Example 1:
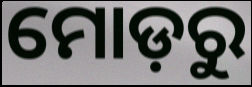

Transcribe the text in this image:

ମୋଡ଼ରୁ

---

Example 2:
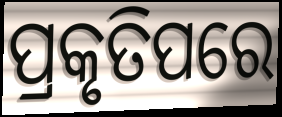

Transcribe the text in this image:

ପ୍ରକୃତିପରେ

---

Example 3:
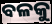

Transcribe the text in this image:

ବଳକୁ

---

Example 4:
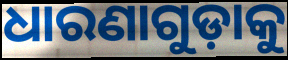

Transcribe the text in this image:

ଧାରଣାଗୁଡ଼ାକୁ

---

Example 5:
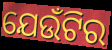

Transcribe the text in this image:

ଯେଉଁଟିର